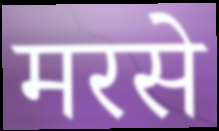
मरसे